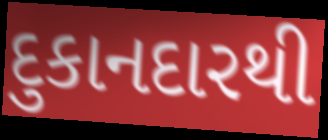
દુકાનદારથી